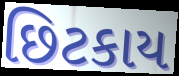
છિટકાય